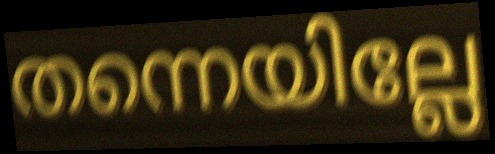
തന്നെയില്ലേ